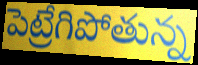
పెట్రేగిపోతున్న